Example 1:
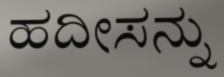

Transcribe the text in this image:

ಹದೀಸನ್ನು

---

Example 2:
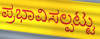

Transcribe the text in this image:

ಪ್ರಭಾವಿಸಲ್ಪಟ್ಟು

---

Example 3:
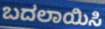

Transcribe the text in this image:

ಬದಲಾಯಿಸಿ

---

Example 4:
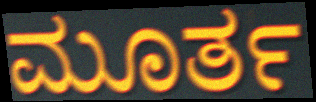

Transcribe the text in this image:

ಮೂರ್ತ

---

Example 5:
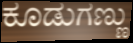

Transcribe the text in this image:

ಕೂಡುಗಣ್ಣು